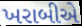
ખરાબીએ